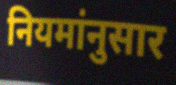
नियमांनुसार